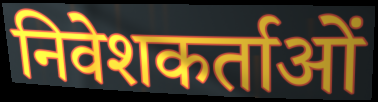
निवेशकर्ताओं